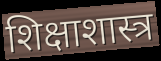
शिक्षाशास्त्र